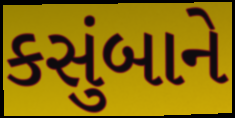
કસુંબાને